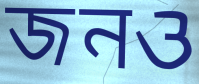
জনও